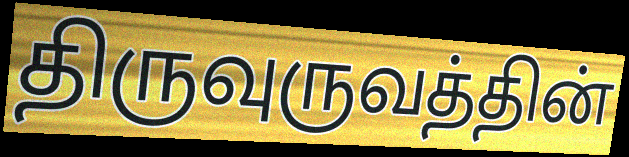
திருவுருவத்தின்